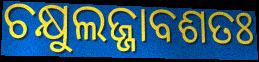
ଚକ୍ଷୁଲଜ୍ଜାବଶତଃ